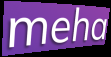
meha